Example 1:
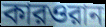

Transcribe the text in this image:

কারওরান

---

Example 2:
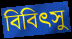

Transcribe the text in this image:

বিবিৎসু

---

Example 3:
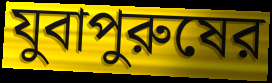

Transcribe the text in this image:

যুবাপুরুষের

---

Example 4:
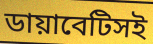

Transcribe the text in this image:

ডায়াবেটিসই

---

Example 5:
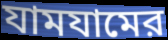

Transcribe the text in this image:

যামযামের